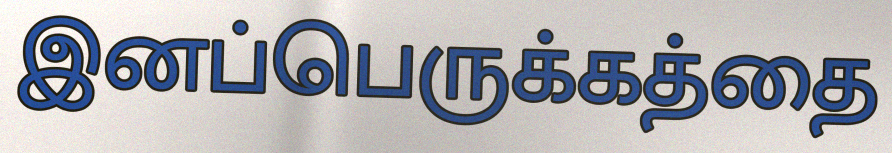
இனப்பெருக்கத்தை